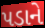
પડાને